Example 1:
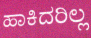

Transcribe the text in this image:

ಹಾಕಿದರಿಲ್ಲ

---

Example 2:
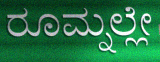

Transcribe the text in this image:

ರೂಮ್ನಲ್ಲೇ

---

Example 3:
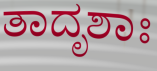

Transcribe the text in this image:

ತಾದೃಶಾಃ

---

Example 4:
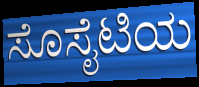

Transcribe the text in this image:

ಸೊಸೈಟಿಯ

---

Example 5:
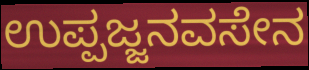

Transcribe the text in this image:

ಉಪ್ಪಜ್ಜನವಸೇನ